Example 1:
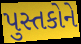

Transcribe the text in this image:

પુસ્તકોને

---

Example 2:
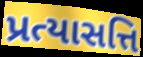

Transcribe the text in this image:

પ્રત્યાસત્તિ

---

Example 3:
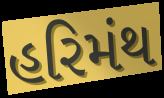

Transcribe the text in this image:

હરિમંથ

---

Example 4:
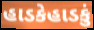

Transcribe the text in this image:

હાડકેહાડકું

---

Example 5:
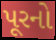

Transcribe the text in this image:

પૂરનો